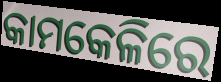
କାମକେଳିରେ